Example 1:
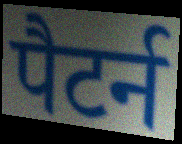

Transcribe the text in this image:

पैटर्न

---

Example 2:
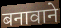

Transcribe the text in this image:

बनावाने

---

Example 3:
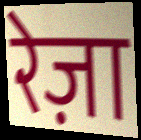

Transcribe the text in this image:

रेज़ा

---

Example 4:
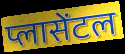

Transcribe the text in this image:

प्लासेंटल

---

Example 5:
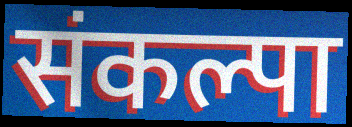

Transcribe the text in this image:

संकल्पा